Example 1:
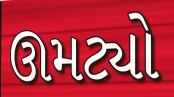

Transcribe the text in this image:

ઊમટ્યો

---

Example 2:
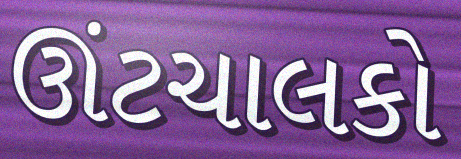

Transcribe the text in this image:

ઊંટચાલકો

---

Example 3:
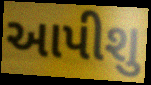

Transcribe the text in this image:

આપીશુ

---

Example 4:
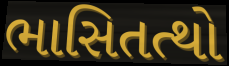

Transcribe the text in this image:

ભાસિતત્થો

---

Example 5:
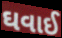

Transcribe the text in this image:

ઘવાઈ